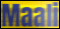
Maali